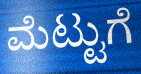
ಮೆಟ್ಟುಗೆ